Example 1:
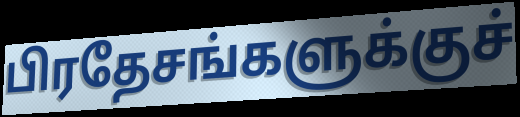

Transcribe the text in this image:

பிரதேசங்களுக்குச்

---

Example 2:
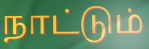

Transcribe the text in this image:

நாட்டும்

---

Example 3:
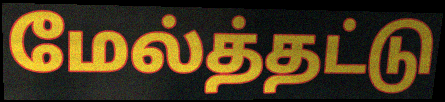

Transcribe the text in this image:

மேல்த்தட்டு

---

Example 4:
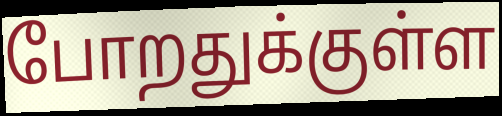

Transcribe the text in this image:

போறதுக்குள்ள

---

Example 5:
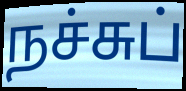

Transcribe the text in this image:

நச்சுப்